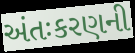
અંતઃકરણની